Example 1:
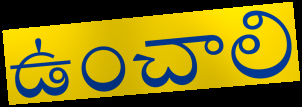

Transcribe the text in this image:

ఉంచాలి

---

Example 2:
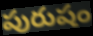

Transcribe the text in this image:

పురుషం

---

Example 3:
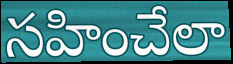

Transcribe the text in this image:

సహించేలా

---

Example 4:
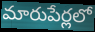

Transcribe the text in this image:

మారుపేర్లలో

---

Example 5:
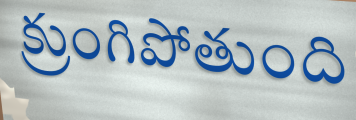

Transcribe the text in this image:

క్రుంగిపోతుంది